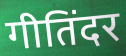
गीतिंदर